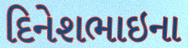
દિનેશભાઇના